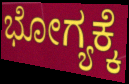
ಭೋಗ್ಯಕ್ಕೆ